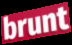
brunt